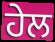
ਹੇਲ